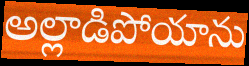
అల్లాడిపోయాను